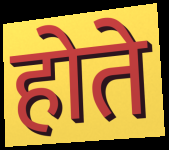
होते